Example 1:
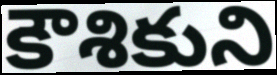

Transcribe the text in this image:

కౌశికుని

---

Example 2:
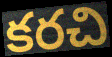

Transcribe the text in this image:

కరచి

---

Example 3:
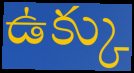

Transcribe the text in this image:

ఉక్కు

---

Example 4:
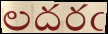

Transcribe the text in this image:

లదరఁ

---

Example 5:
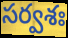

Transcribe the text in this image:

సర్వశః